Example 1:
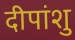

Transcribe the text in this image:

दीपांशु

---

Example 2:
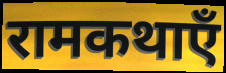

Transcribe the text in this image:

रामकथाएँ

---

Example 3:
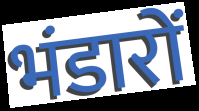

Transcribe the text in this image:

भंडारों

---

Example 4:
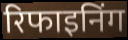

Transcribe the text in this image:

रिफाइनिंग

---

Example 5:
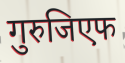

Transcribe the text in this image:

गुरुजिएफ